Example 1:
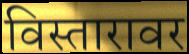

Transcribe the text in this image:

विस्तारावर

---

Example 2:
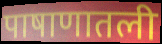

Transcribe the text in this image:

पाषाणातली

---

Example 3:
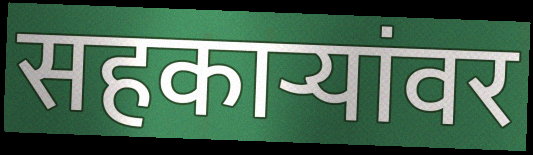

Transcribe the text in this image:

सहकार्‍यांवर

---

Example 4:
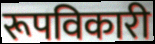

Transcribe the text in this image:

रूपविकारी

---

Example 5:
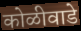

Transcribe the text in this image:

कोळीवाडे